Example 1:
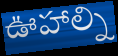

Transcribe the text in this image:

ఊహాల్ని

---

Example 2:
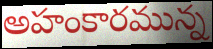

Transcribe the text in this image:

అహంకారమున్న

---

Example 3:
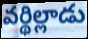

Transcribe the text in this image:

వర్థిల్లాడు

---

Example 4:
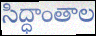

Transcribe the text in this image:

సిద్ధాంతాల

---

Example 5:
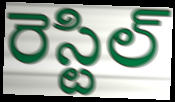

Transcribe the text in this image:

రెస్టిల్